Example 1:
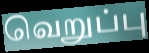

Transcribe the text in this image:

வெறுப்பு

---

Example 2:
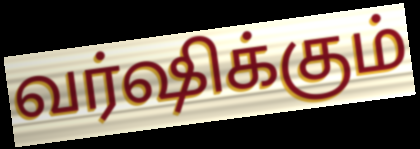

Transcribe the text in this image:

வர்ஷிக்கும்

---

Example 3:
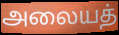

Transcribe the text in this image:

அலையத்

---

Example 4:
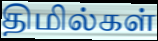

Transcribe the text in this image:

திமில்கள்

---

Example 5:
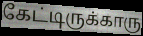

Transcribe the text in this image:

கேட்டிருக்காரு